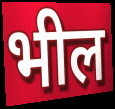
भील